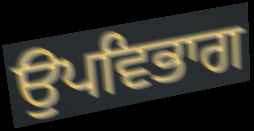
ਉਪਵਿਭਾਗ